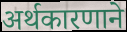
अर्थकारणाने